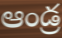
ఆండ్ర